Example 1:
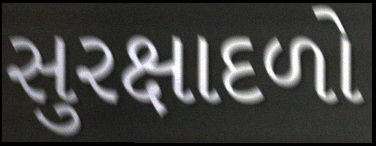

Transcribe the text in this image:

સુરક્ષાદળો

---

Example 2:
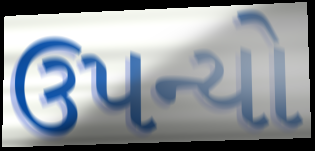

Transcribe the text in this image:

ઉપન્યો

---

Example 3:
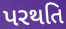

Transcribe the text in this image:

પરથતિ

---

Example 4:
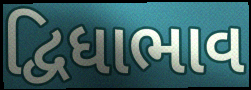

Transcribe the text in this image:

દ્વિધાભાવ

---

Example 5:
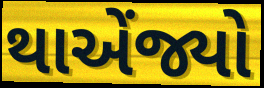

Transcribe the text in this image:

થાએંજ્યો